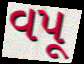
વપૂ